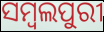
ସମ୍ବଲପୁରୀ